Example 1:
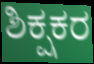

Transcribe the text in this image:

ಶಿಕ್ಷಕರ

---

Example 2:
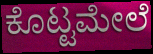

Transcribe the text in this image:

ಕೊಟ್ಟಮೇಲೆ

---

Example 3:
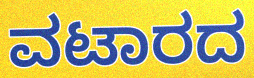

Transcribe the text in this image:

ವಟಾರದ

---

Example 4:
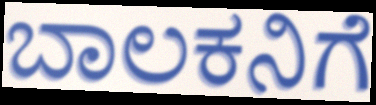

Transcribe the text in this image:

ಬಾಲಕನಿಗೆ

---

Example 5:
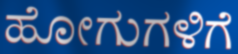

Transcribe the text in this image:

ಹೋಗುಗಳಿಗೆ